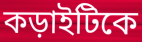
কড়াইটিকে